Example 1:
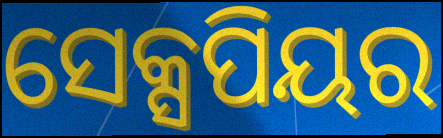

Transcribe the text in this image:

ସେକ୍ସପିୟର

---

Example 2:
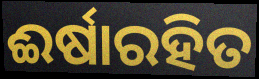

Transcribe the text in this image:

ଈର୍ଷାରହିତ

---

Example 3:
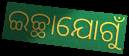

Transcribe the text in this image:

ଇଚ୍ଛାଯୋଗୁଁ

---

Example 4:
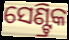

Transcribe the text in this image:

ସେଣ୍ଟ୍ରିକ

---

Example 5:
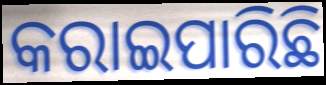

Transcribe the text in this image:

କରାଇପାରିଛି